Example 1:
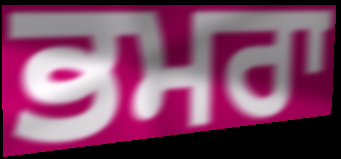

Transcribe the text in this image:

ਭਮਰਾ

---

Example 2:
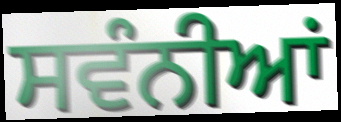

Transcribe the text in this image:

ਸਵੰਨੀਆਂ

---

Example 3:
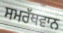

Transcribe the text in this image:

ਸਮਰੱਥਵਾਨ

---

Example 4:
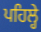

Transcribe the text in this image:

ਪਹਿਲ੍ਹੇ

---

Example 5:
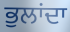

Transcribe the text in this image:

ਭੁਲਾਂਦਾ